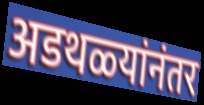
अडथळ्यांनंतर